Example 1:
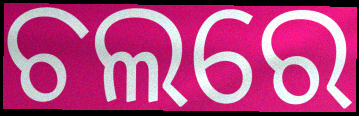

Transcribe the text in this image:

ଚଲରେ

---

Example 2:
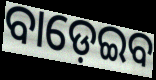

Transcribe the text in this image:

ବାଡ଼େଇବ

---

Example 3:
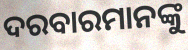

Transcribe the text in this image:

ଦରବାରମାନଙ୍କୁ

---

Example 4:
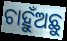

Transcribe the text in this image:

ଚାହୁଁଅଛୁ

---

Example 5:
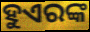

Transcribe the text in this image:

ହୁଏରଙ୍କ